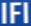
IFI